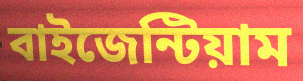
বাইজেন্টিয়াম